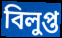
বিলুপ্ত